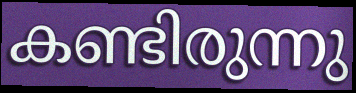
കണ്ടിരുന്നു